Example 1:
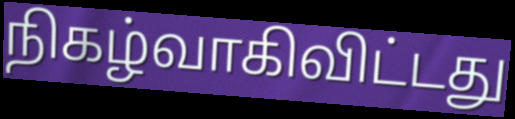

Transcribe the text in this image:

நிகழ்வாகிவிட்டது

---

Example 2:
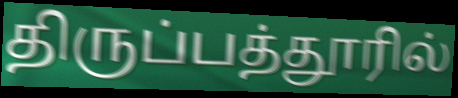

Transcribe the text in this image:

திருப்பத்தூரில்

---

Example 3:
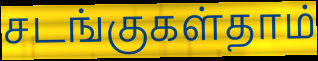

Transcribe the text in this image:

சடங்குகள்தாம்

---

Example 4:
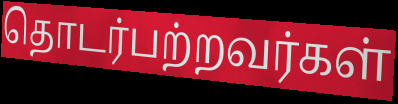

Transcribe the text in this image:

தொடர்பற்றவர்கள்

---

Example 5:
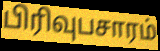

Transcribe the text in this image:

பிரிவுபசாரம்